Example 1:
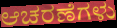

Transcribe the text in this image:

ಆಚರಣೆಗಳು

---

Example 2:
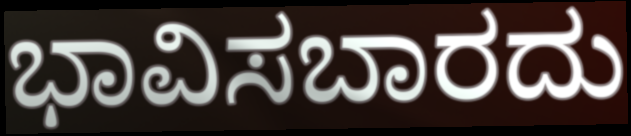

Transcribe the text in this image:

ಭಾವಿಸಬಾರದು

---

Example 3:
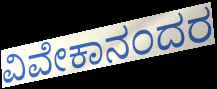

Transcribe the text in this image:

ವಿವೇಕಾನಂದರ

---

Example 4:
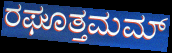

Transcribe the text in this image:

ರಘೂತ್ತಮಮ್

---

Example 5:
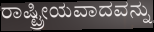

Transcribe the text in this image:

ರಾಷ್ಟ್ರೀಯವಾದವನ್ನು